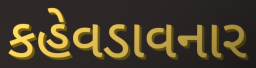
કહેવડાવનાર